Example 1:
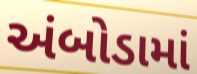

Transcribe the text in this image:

અંબોડામાં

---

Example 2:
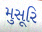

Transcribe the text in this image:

મુસૂરિ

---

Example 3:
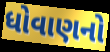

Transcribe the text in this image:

ધોવાણનો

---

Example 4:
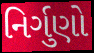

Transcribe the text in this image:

નિર્ગુણો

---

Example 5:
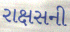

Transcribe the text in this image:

રાક્ષસની